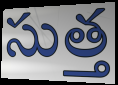
సుత్త